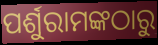
ପର୍ଶୁରାମଙ୍କଠାରୁ